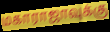
மகாராஜாவுக்கு